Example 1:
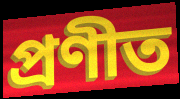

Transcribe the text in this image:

প্ৰণীত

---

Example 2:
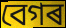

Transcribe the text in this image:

বেগৰ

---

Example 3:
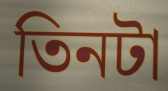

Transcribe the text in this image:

তিনটা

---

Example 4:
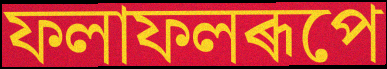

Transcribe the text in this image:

ফলাফলৰূপে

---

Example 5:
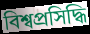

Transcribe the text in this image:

বিশ্বপ্ৰসিদ্ধি